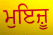
ਮੁਇਜ਼ੂ